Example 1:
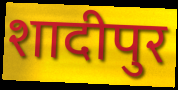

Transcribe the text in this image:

शादीपुर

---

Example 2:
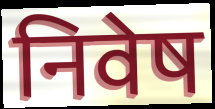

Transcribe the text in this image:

निवेष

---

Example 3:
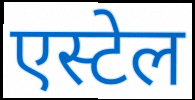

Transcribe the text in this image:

एस्टेल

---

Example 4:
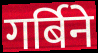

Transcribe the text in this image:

गर्बिने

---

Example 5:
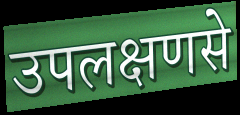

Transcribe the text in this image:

उपलक्षणसे